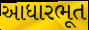
આધારભૂત